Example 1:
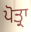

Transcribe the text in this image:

ਪੋਤ੍ਰਾ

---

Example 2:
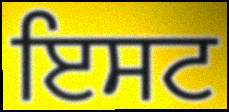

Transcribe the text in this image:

ਇਸਟ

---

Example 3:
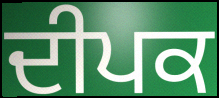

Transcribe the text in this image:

ਦੀਪਕ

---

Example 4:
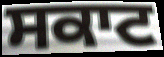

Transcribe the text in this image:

ਸਕਾਟ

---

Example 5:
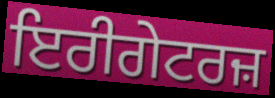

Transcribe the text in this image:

ਇਰੀਗੇਟਰਜ਼